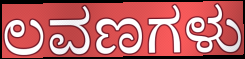
ಲವಣಗಳು